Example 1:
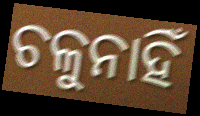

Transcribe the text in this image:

ଚଳୁନାହିଁ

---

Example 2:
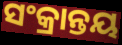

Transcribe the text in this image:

ସଂକ୍ରାନ୍ତୟ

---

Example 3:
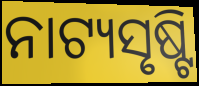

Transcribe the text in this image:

ନାଟ୍ୟସୃଷ୍ଟି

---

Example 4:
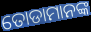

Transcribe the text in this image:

ତୋଡାମାନଙ୍କ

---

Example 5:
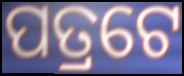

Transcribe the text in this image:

ପତ୍ରଟେ